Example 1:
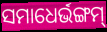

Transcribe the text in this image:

ସମାଧେର୍ଭଙ୍ଗମ୍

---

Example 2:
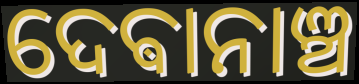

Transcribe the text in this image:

ଦେଵାନାଞ୍ଚ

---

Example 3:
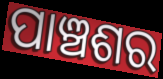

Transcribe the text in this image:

ପାଞ୍ଚଶର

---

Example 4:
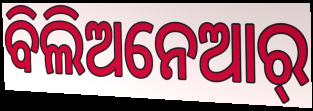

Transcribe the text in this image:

ବିଲିଅନେଆର୍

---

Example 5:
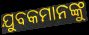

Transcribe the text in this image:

ଯୁବକମାନଙ୍କୁ